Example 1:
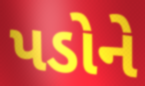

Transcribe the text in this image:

પડોને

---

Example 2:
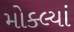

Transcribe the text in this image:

મોક્લ્યાં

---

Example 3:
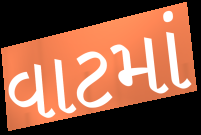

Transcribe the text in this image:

વાટમાં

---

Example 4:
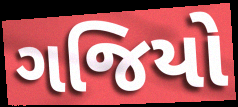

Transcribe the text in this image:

ગજિયો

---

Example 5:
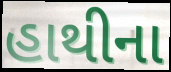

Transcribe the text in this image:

હાથીના